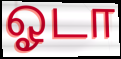
ஓடா